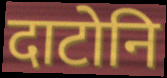
दाटोनि